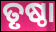
ତୃଷ୍ଠା